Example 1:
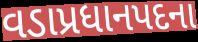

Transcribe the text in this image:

વડાપ્રધાનપદના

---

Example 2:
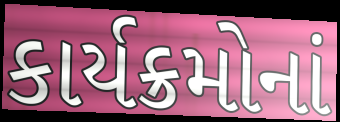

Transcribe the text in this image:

કાર્યક્રમોનાં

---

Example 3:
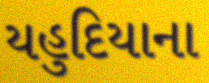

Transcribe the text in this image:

યહુદિયાના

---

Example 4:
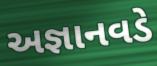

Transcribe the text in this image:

અજ્ઞાનવડે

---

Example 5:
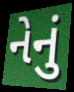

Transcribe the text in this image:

નેનું